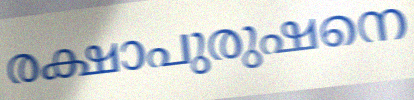
രക്ഷാപുരുഷനെ